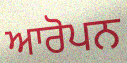
ਆਰੋਪਨ